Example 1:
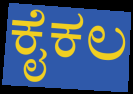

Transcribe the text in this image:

ಕೈಕಲ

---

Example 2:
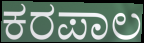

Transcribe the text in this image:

ಕರಪಾಲ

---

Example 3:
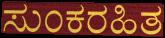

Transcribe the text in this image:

ಸುಂಕರಹಿತ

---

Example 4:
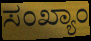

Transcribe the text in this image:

ಸಂಖ್ಯಾಂ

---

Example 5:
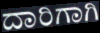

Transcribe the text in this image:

ದಾರಿಗಾಗಿ